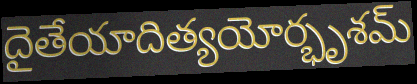
దైతేయాదిత్యయోర్భృశమ్